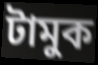
টামুক